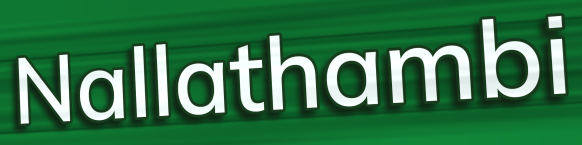
Nallathambi